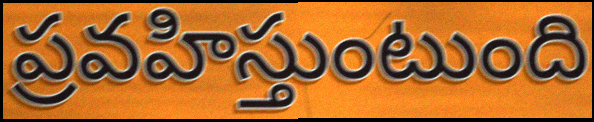
ప్రవహిస్తుంటుంది